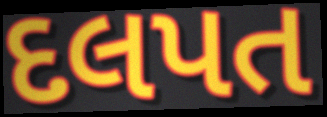
દલપત